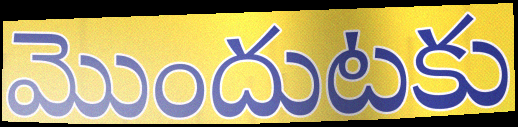
మొందుటకు